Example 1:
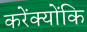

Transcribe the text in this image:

करेंक्योंकि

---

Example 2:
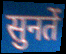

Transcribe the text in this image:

सुनतें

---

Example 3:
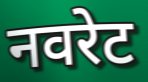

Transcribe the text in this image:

नवरेट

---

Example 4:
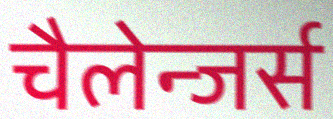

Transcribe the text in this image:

चैलेन्जर्स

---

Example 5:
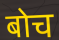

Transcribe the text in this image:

बोच